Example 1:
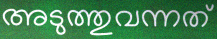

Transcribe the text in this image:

അടുത്തുവന്നത്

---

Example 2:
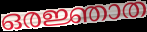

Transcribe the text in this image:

ഒരജ്ഞാത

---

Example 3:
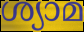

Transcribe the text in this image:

ശ്യാമ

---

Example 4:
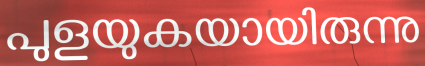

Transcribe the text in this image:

പുളയുകയായിരുന്നു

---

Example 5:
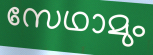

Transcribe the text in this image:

സേഥാമും